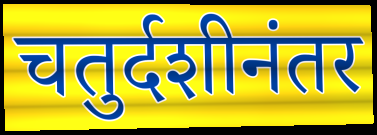
चतुर्दशीनंतर